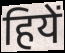
हियें